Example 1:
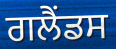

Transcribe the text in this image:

ਗਲੈਂਡਸ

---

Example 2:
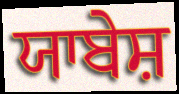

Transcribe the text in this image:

ਯਾਬੇਸ਼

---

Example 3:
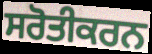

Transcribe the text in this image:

ਸਰੋਤੀਕਰਨ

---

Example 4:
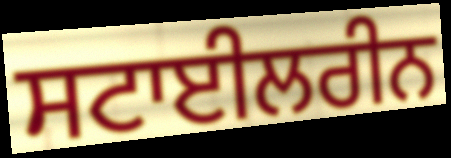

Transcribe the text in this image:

ਸਟਾਈਲਰੀਨ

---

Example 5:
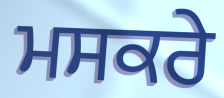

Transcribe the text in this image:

ਮਸਕਰੇ